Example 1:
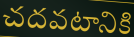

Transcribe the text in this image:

చదవటానికి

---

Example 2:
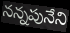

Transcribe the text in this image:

నన్నపునేని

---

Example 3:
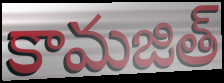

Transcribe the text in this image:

కామజిత్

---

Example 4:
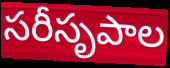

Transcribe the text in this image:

సరీసృపాల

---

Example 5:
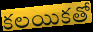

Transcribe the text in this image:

కలయికతో